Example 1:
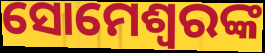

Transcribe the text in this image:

ସୋମେଶ୍ୱରଙ୍କ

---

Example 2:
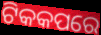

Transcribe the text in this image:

ଟିକକପରେ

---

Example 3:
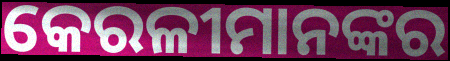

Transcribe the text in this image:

କେରଳୀମାନଙ୍କର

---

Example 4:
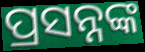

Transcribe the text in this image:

ପ୍ରସନ୍ନଙ୍କ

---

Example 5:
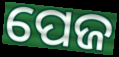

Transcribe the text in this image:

ପେଜ